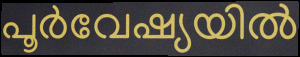
പൂർവേഷ്യയിൽ